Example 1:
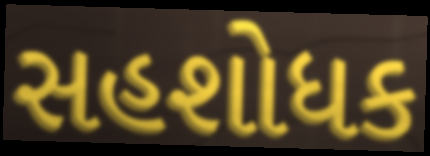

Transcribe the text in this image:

સહશોધક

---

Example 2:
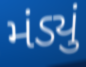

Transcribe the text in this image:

મંડ્યું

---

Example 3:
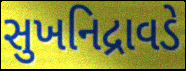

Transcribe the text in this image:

સુખનિદ્રાવડે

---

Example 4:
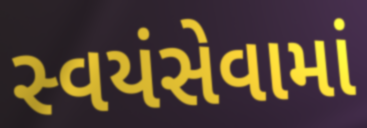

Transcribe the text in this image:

સ્વયંસેવામાં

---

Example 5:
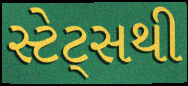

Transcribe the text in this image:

સ્ટેટ્સથી